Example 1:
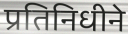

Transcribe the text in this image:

प्रतिनिधीने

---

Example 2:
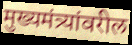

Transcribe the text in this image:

मुख्यमंत्र्यांवरील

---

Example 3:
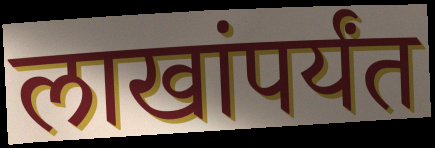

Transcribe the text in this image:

लाखांपर्यंत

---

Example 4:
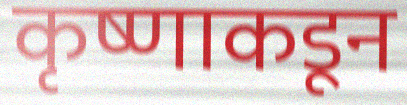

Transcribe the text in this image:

कृष्णाकडून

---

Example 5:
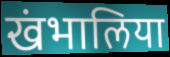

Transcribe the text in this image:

खंभालिया